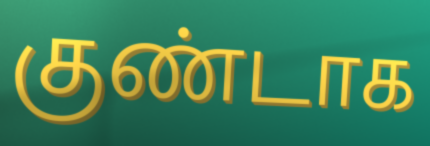
குண்டாக